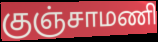
குஞ்சாமணி